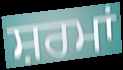
ਸ਼ਰਮਾਂ